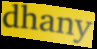
dhany